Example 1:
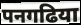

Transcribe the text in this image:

पनगढिया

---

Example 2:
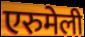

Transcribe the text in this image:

एरुमेली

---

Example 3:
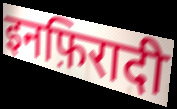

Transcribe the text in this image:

इनफ़िरादी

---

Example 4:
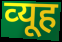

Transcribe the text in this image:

व्‍यूह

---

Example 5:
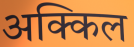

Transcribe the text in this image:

अक्किल